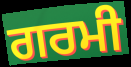
ਗਰਮੀ